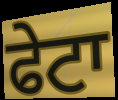
ਫੇਟਾ